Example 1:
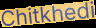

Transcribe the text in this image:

Chitkhedi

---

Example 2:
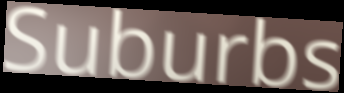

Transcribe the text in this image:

Suburbs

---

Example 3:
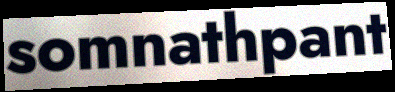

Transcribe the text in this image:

somnathpant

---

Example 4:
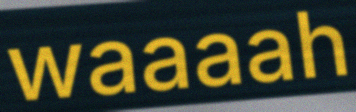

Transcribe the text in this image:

waaaah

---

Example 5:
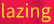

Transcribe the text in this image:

lazing